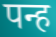
पन्ह